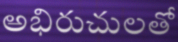
అభిరుచులతో